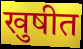
खुषीत